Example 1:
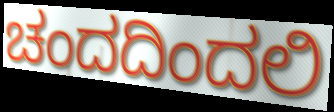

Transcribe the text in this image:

ಚಂದದಿಂದಲಿ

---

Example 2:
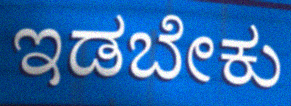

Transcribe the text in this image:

ಇಡಬೇಕು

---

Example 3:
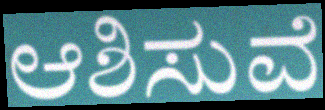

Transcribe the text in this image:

ಆಶಿಸುವೆ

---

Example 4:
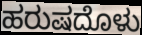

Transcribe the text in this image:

ಹರುಷದೊಳು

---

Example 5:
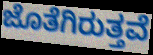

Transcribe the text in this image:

ಜೊತೆಗಿರುತ್ತವೆ